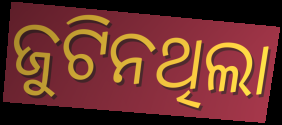
ଜୁଟିନଥିଲା